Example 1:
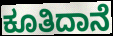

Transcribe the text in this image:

ಕೂತಿದಾನೆ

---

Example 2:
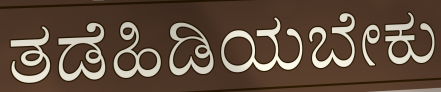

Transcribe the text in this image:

ತಡೆಹಿಡಿಯಬೇಕು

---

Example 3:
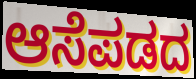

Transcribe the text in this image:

ಆಸೆಪಡದ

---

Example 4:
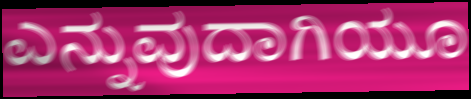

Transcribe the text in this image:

ಎನ್ನುವುದಾಗಿಯೂ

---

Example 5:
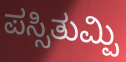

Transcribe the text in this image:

ಪಸ್ಸಿತುಮ್ಪಿ